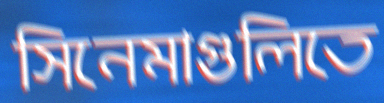
সিনেমাগুলিতে